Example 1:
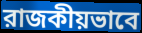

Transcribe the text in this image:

রাজকীয়ভাবে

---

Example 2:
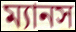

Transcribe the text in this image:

ম্যানস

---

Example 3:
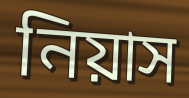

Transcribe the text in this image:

নিয়াস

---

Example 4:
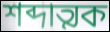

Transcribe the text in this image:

শব্দাত্মক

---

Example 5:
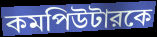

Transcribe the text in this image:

কমপিউটারকে